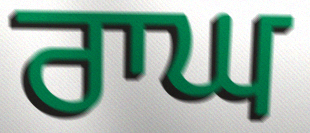
ਰਾਘ